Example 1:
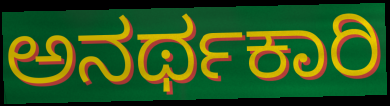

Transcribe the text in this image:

ಅನರ್ಥಕಾರಿ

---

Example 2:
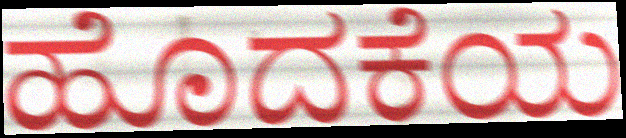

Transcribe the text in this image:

ಹೊದಕೆಯ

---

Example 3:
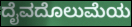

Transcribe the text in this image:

ದೈವದೊಲುಮೆಯ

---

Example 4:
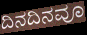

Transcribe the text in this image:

ದಿನದಿನವೂ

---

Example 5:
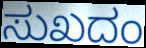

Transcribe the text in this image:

ಸುಖದಂ